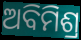
ଅବିମିଶ୍ର